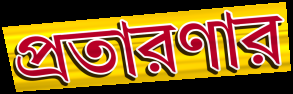
প্রতারণার